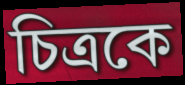
চিত্রকে